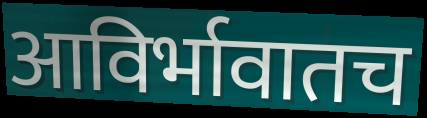
आविर्भावातच